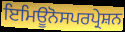
ਇਮਿਊਨੋਸਪਰਪ੍ਰੇਸ਼ਨ